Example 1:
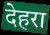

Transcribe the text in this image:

देहरा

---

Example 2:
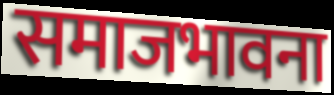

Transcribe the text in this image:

समाजभावना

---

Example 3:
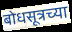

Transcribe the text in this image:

बोधसूत्रच्या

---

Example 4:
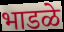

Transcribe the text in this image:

भाडळे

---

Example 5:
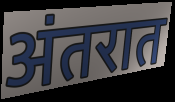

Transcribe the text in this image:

अंतरात